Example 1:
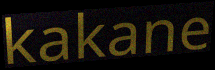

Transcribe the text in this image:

kakane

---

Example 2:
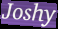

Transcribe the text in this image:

Joshy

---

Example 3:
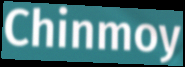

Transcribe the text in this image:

Chinmoy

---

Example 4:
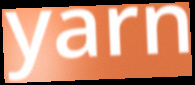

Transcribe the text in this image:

yarn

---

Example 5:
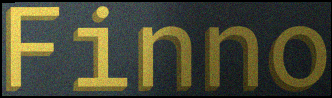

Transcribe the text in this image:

Finno